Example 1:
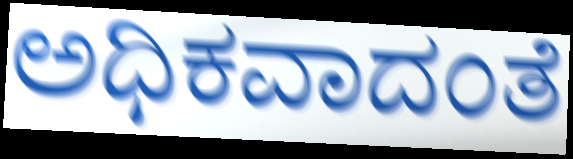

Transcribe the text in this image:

ಅಧಿಕವಾದಂತೆ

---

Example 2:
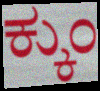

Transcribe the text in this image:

ಕ್ಕುಂ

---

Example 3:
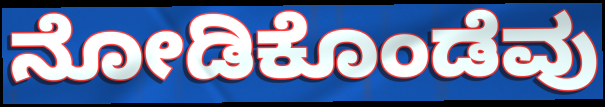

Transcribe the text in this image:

ನೋಡಿಕೊಂಡೆವು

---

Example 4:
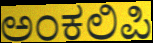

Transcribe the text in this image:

ಅಂಕಲಿಪಿ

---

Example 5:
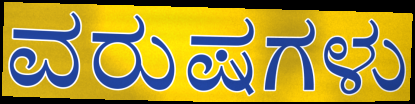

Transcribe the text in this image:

ವರುಷಗಳು